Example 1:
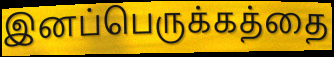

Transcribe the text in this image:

இனப்பெருக்கத்தை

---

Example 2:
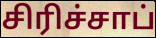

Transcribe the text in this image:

சிரிச்சாப்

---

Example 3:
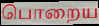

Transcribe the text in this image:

பொறைய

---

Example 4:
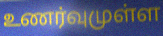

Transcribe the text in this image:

உணர்வுமுள்ள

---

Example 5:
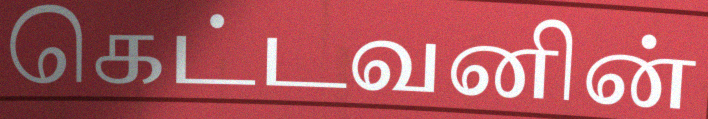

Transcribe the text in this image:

கெட்டவனின்